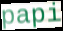
papi